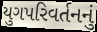
યુગપરિવર્તનનું